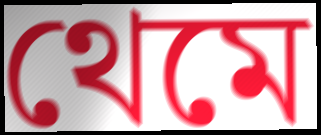
থেমে